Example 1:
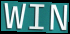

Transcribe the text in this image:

WIN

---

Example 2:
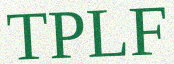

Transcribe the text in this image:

TPLF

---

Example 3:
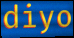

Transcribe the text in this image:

diyo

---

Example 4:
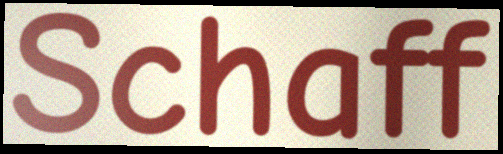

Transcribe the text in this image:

Schaff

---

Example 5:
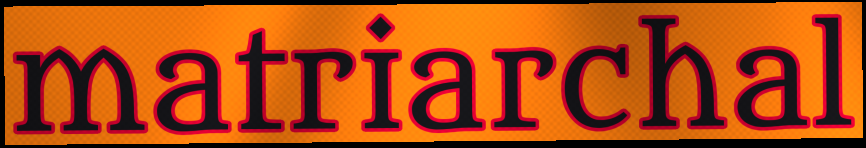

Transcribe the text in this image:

matriarchal